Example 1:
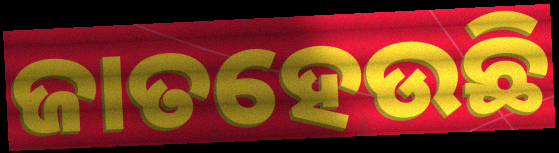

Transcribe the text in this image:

ଜାତହେଉଛି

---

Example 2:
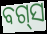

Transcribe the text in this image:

ବଗ୍‌ସ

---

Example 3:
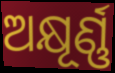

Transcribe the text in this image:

ଅକ୍ଷୂର୍ଣ୍ଣ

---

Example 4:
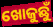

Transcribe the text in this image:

ଖୋଜୁଛୁଁ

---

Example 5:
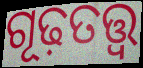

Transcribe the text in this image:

ଗୂଢ଼ତତ୍ତ୍ୱ